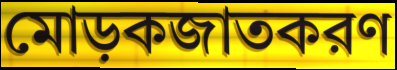
মোড়কজাতকরণ